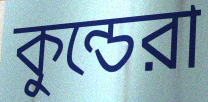
কুন্ডেরা